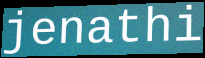
jenathi